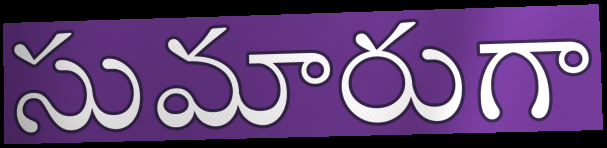
సుమారుగా